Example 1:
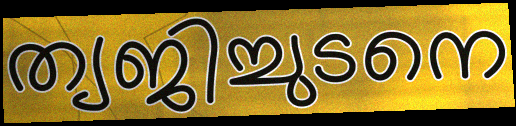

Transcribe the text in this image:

ത്യജിച്ചുടനെ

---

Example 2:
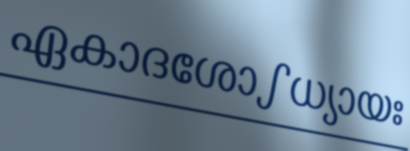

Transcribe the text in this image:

ഏകാദശോഽധ്യായഃ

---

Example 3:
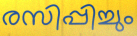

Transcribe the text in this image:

രസിപ്പിച്ചും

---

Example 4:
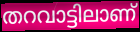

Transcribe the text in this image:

തറവാട്ടിലാണ്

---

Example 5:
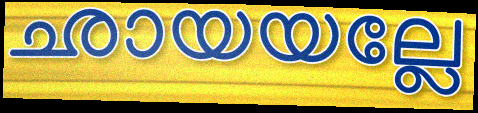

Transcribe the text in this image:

ഛായയല്ലേ